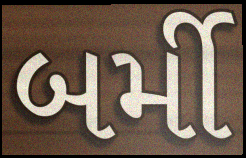
બર્મી